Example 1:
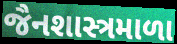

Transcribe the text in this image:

જૈનશાસ્ત્રમાળા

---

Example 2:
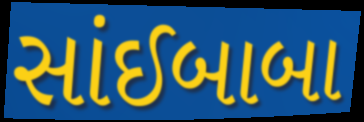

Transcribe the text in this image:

સાંઈબાબા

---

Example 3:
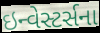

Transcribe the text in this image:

ઇન્વેસ્ટર્સના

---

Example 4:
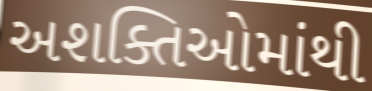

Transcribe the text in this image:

અશક્તિઓમાંથી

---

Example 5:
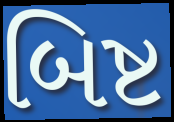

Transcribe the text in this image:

બિષ્ટ